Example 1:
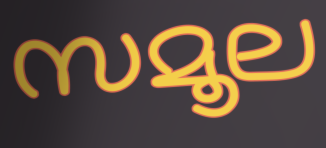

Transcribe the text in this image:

സമൂല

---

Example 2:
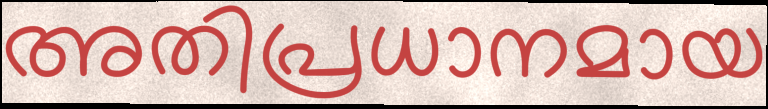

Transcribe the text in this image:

അതിപ്രധാനമായ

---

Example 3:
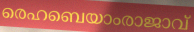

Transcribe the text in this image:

രെഹബെയാംരാജാവ്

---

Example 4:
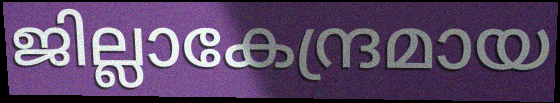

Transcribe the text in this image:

ജില്ലാകേന്ദ്രമായ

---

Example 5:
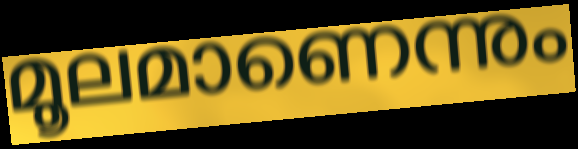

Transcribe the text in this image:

മൂലമാണെന്നും